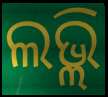
ଲଭ୍ଲି